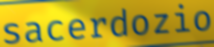
sacerdozio